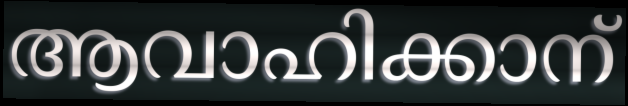
ആവാഹിക്കാന്